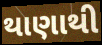
થાણાથી